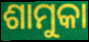
ଶାମୁକା